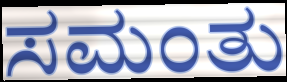
ಸಮಂತು